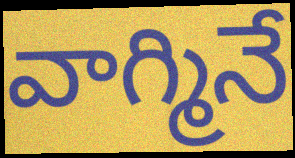
వాగ్మినే